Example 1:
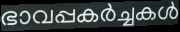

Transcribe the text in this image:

ഭാവപ്പകർച്ചകൾ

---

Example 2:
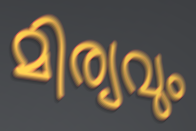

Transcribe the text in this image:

മിര്യവും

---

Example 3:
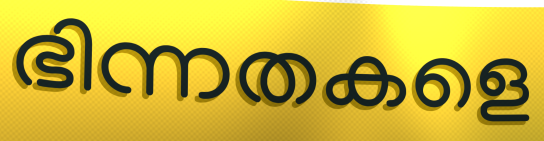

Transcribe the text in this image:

ഭിന്നതകളെ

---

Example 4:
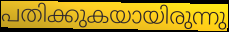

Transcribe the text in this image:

പതിക്കുകയായിരുന്നു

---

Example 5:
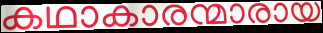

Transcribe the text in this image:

കഥാകാരന്മാരായ